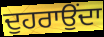
ਦੁਹਰਾਉਂਦਾ